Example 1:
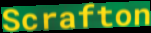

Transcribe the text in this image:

Scrafton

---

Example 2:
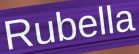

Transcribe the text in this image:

Rubella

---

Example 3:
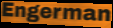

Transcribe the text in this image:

Engerman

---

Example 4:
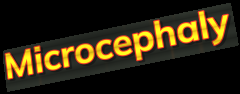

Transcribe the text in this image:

Microcephaly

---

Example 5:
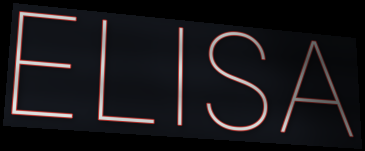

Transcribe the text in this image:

ELISA